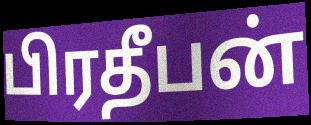
பிரதீபன்